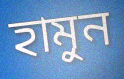
হামুন